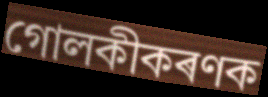
গোলকীকৰণক